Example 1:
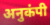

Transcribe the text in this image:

अनुकंपी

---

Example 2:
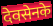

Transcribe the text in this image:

देवसेनके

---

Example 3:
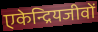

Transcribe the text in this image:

एकेन्द्रियजीवों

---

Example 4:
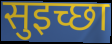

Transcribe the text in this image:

सुइच्छा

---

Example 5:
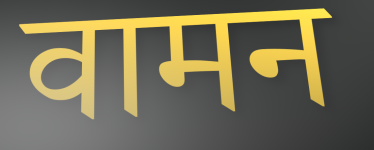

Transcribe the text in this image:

वामन